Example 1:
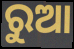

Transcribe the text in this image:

ରୁଆ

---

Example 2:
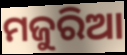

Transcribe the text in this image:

ମଜୁରିଆ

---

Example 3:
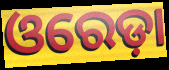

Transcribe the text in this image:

ଓରେଡ଼ା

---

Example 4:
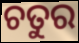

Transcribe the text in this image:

ଚତୁର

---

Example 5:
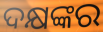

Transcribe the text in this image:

ଦକ୍ଷଙ୍କର